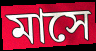
মাসে